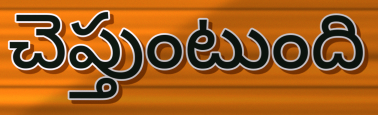
చెప్తుంటుంది